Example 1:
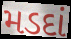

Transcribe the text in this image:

મડદાં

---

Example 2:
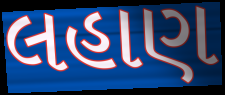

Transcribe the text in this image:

લહાણ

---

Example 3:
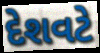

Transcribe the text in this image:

દેશવટે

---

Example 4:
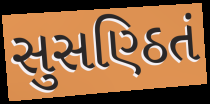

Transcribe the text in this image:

સુસણ્ઠિતં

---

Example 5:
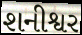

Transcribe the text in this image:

શનીશ્વર